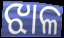
ଝାଳ